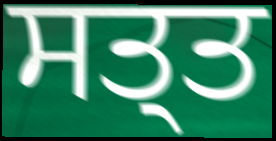
ਸਤ੍ਤ